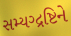
સમ્યગ્દ્રષ્ટિને